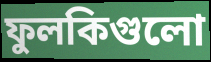
ফুলকিগুলো